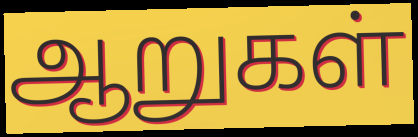
ஆறுகள்